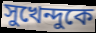
সুখেন্দুকে